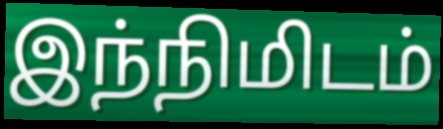
இந்நிமிடம்